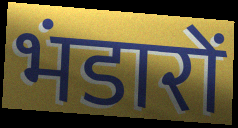
भंडारों